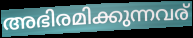
അഭിരമിക്കുന്നവര്